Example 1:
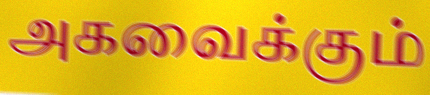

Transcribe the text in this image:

அகவைக்கும்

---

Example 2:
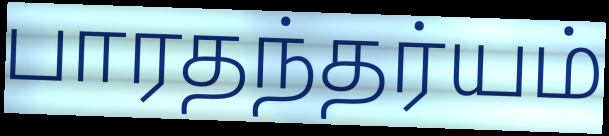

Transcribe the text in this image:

பாரதந்தர்யம்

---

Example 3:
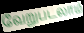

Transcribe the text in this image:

வேறுபடலாம்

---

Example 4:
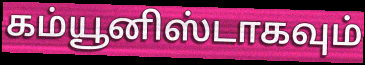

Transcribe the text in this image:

கம்யூனிஸ்டாகவும்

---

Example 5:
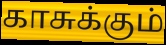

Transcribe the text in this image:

காசுக்கும்